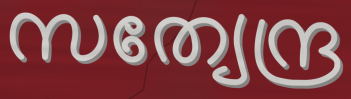
സത്യേന്ദ്ര